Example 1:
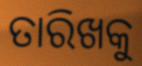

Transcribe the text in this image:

ତାରିଖକୁ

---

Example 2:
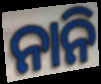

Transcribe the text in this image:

ନାନି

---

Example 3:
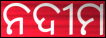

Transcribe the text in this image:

ନଦୀମ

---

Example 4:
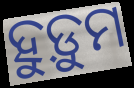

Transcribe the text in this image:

ହୁଡ଼ୁମ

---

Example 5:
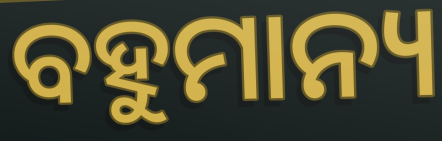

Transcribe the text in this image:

ବହୁମାନ୍ୟ